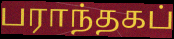
பராந்தகப்